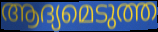
ആദ്യമെടുത്ത